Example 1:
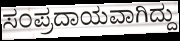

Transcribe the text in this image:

ಸಂಪ್ರದಾಯವಾಗಿದ್ದು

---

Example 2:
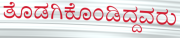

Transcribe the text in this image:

ತೊಡಗಿಕೊಂಡಿದ್ದವರು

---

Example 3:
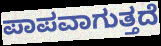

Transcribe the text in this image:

ಪಾಪವಾಗುತ್ತದೆ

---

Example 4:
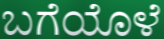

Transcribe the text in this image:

ಬಗೆಯೊಳೆ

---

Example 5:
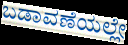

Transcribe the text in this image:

ಬಡಾವಣೆಯಲ್ಲೇ